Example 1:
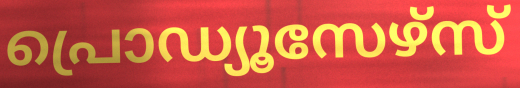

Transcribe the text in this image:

പ്രൊഡ്യൂസേഴ്സ്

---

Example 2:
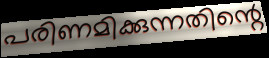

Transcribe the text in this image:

പരിണമിക്കുന്നതിന്റെ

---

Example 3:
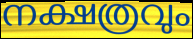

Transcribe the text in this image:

നക്ഷത്രവും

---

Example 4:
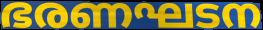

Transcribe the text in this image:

ഭരണഘടന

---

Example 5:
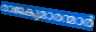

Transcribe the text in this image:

രാജകുമാരന്മാർ